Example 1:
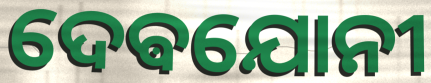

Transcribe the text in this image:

ଦେଵଯୋନୀ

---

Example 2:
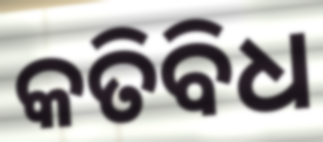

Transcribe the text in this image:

କତିବିଧ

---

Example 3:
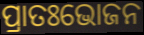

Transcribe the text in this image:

ପ୍ରାତଃଭୋଜନ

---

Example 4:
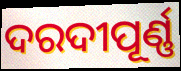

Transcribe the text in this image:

ଦରଦୀପୂର୍ଣ୍ଣ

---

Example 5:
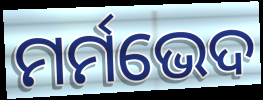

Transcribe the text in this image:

ମର୍ମଭେଦ